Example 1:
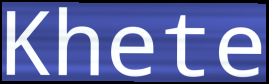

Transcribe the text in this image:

Khete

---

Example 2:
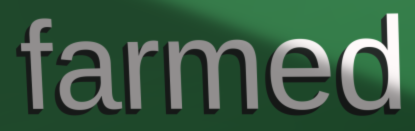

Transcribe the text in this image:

farmed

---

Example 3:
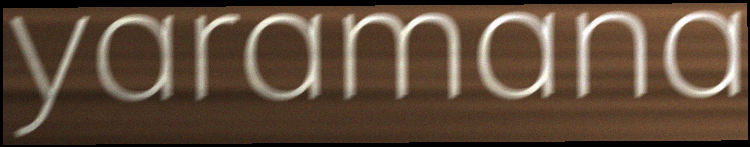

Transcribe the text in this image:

yaramana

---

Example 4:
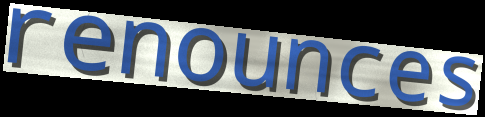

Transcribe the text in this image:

renounces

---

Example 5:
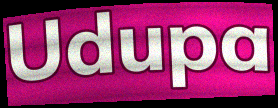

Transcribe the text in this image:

Udupa